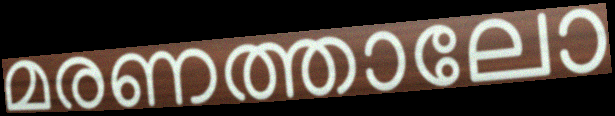
മരണത്താലോ